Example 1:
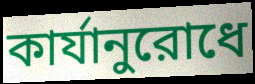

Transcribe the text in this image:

কার্যানুরোধে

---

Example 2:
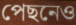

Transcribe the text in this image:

পেছনেও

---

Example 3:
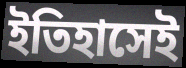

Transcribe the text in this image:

ইতিহাসেই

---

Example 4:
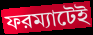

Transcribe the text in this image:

ফরম্যাটেই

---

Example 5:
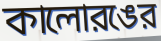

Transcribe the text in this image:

কালোরঙের